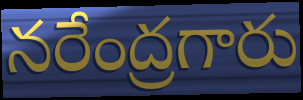
నరేంద్రగారు